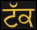
ਟੱਕ